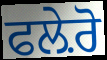
ਫਲ਼ੇਰੋ